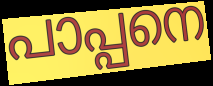
പാപ്പനെ